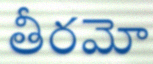
తీరమో